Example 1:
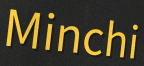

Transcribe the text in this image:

Minchi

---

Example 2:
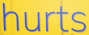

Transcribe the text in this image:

hurts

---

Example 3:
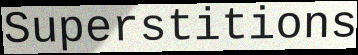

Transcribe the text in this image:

Superstitions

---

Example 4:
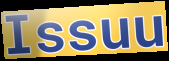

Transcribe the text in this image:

Issuu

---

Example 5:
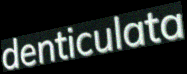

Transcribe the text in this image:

denticulata